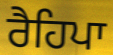
ਰੈਹਿਪਾ